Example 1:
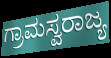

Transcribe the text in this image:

ಗ್ರಾಮಸ್ವರಾಜ್ಯ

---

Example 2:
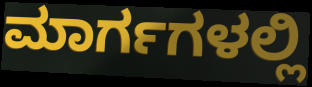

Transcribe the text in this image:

ಮಾರ್ಗಗಳಲ್ಲಿ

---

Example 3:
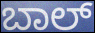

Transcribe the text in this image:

ಬಾಲ್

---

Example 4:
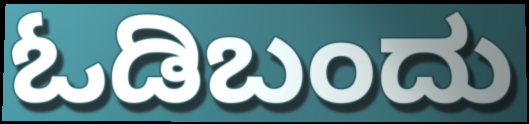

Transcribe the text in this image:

ಓಡಿಬಂದು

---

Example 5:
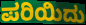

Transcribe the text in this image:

ಪರಿಯಿದು